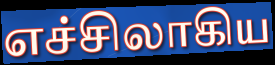
எச்சிலாகிய